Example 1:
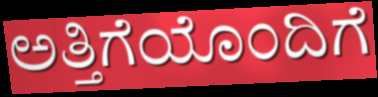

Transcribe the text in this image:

ಅತ್ತಿಗೆಯೊಂದಿಗೆ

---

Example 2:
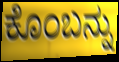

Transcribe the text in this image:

ಕೊಂಬನ್ನು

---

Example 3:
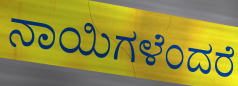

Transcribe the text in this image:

ನಾಯಿಗಳೆಂದರೆ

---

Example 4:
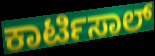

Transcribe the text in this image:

ಕಾರ್ಟಿಸಾಲ್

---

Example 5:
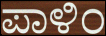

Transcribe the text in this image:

ಪಾಳಿಂ